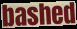
bashed